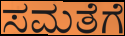
ಸಮತೆಗೆ